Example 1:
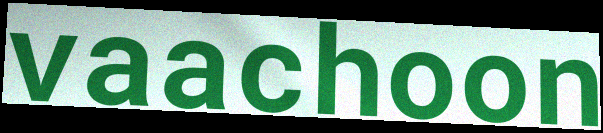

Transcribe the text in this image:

vaachoon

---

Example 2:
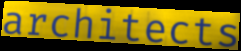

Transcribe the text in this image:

architects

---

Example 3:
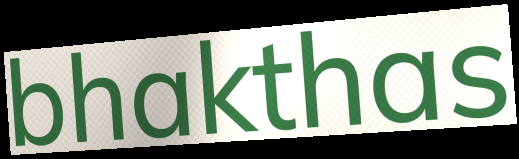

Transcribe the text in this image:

bhakthas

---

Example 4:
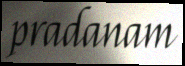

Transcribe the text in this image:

pradanam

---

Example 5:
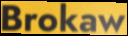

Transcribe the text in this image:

Brokaw